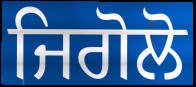
ਜਿਗੋਲੋ